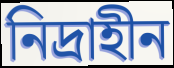
নিদ্রাহীন